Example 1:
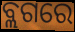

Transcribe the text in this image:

ବ୍ଲଗରେ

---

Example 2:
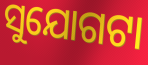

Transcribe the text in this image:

ସୁଯୋଗଟା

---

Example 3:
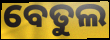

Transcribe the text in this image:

ବେତୁଲ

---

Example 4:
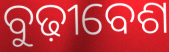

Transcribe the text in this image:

ବୁଢ଼ୀବେଶ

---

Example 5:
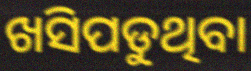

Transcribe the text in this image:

ଖସିପଡୁଥିବା